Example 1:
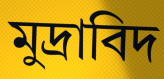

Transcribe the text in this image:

মুদ্ৰাবিদ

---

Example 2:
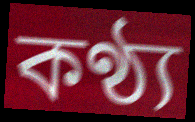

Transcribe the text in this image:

কণ্ঠ্য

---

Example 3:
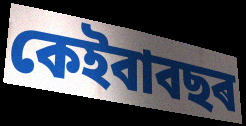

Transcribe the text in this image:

কেইবাবছৰ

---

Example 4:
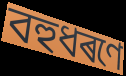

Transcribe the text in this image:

বহুধৰণে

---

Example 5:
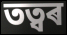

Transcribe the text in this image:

তত্বৰ